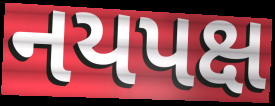
નયપક્ષ